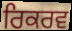
ਰਿਕਰਵ